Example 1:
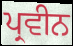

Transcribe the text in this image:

ਪ੍ਰਵੀਨ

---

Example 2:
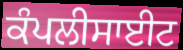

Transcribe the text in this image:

ਕੰਪਲੀਸਾਈਟ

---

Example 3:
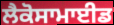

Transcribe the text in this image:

ਲੈਕੋਸਾਮਾਈਡ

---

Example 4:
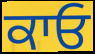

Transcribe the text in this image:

ਕਾਓ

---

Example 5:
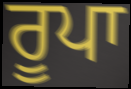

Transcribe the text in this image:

ਰੂਪਾ